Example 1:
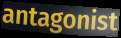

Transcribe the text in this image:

antagonist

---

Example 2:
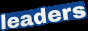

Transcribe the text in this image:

leaders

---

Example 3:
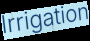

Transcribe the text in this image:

Irrigation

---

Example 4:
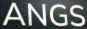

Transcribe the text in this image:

ANGS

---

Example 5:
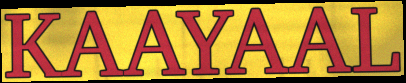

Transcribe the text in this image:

KAAYAAL